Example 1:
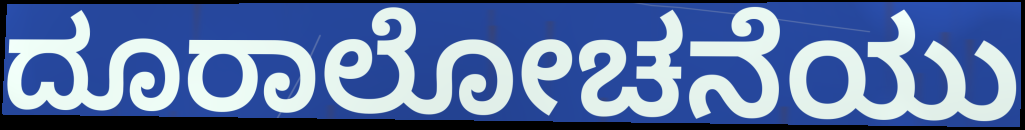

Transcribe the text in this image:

ದೂರಾಲೋಚನೆಯು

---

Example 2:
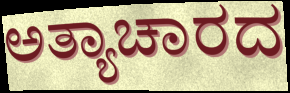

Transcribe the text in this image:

ಅತ್ಯಾಚಾರದ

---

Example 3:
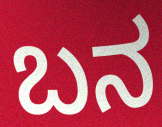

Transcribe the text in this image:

ಬನ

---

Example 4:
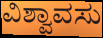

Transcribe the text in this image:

ವಿಶ್ವಾವಸು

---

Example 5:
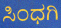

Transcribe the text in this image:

ಸಿಂಧಗಿ